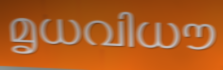
മൃധവിധൗ